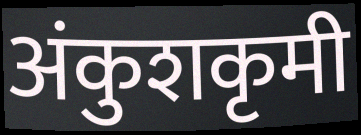
अंकुशकृमी